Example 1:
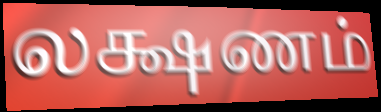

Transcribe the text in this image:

லக்ஷணம்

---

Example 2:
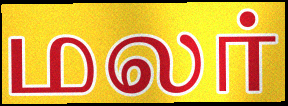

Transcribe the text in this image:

மலர்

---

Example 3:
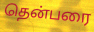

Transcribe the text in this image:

தென்பரை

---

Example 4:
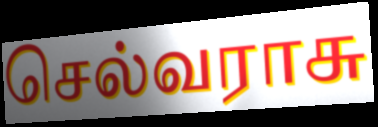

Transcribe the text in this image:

செல்வராசு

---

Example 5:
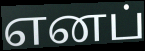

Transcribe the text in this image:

எனப்